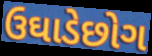
ઉઘાડેછોગ